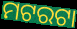
ମଟରଟା